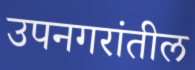
उपनगरांतील